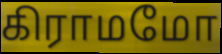
கிராமமோ